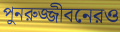
পুনরুজ্জীবনেরও